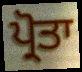
ਪ੍ਰੋਤਾ